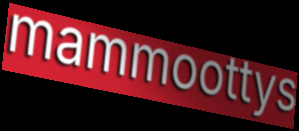
mammoottys